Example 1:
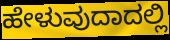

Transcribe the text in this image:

ಹೇಳುವುದಾದಲ್ಲಿ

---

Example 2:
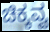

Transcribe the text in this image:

ಚಿಕ್ಕವ್ವ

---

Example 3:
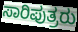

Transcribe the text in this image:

ಸಾರಿಪುತ್ರರು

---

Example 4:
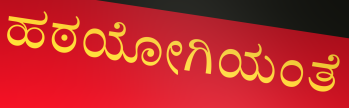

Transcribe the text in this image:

ಹಠಯೋಗಿಯಂತೆ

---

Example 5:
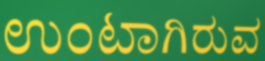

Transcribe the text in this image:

ಉಂಟಾಗಿರುವ